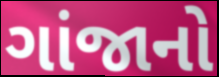
ગાંજાનો